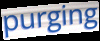
purging